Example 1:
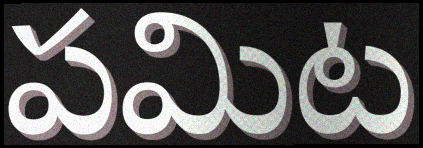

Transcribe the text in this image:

పమిట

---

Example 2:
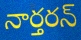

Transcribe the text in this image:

నార్తరన్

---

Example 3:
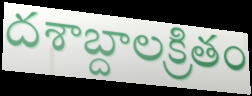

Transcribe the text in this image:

దశాబ్దాలక్రితం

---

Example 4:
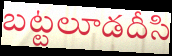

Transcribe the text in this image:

బట్టలూడదీసి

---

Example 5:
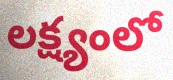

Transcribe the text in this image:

లక్ష్యంలో